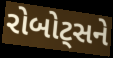
રોબોટ્સને